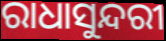
ରାଧାସୁନ୍ଦରୀ